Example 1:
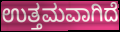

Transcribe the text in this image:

ಉತ್ತಮವಾಗಿದೆ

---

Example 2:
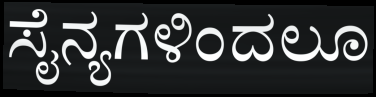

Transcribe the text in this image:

ಸೈನ್ಯಗಳಿಂದಲೂ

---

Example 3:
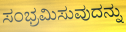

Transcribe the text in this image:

ಸಂಭ್ರಮಿಸುವುದನ್ನು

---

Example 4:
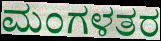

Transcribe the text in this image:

ಮಂಗಳತರ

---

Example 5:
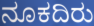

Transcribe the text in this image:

ನೂಕದಿರು